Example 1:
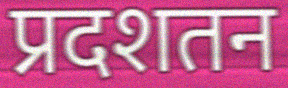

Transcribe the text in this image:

प्रदशतन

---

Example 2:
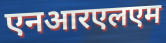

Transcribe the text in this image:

एनआरएलएम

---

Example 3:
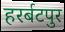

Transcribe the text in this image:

हरर्बटपुर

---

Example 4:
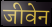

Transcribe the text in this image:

जीवेन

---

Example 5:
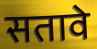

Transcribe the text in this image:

सतावे